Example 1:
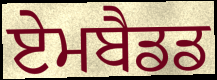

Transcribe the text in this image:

ਏਮਬੈਡਡ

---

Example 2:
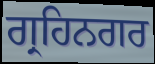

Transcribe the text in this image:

ਗ੍ਰਹਿਨਗਰ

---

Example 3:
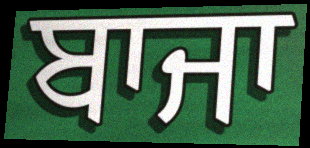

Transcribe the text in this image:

ਬਾਜਾ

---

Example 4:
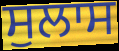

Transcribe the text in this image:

ਸੁਲਾਸ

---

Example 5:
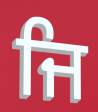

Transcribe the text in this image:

ਜਿ